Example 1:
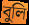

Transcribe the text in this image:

বুলি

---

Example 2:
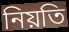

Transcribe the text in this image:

নিয়তি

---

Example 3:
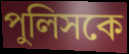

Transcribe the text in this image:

পুলিসকে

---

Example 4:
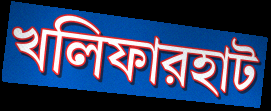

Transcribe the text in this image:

খলিফারহাট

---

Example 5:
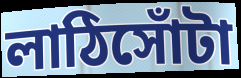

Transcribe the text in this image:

লাঠিসোঁটা